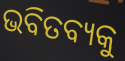
ଭବିତବ୍ୟକୁ